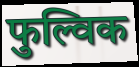
फुल्विक